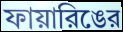
ফায়ারিঙের